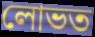
লোভত